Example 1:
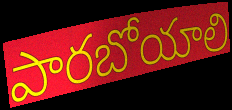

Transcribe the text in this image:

పారబోయాలి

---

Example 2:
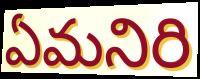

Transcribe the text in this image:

ఏమనిరి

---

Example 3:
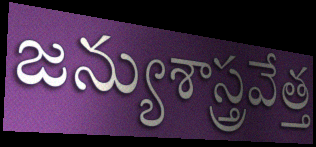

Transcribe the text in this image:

జన్యుశాస్త్రవేత్త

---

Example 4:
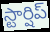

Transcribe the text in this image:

స్టార్షిప్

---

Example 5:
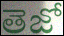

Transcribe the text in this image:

తెజో